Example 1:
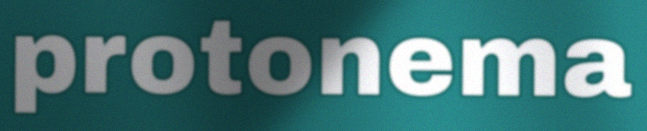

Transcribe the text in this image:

protonema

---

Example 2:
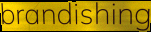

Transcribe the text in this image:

brandishing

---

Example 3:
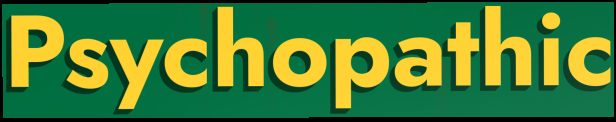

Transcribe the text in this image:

Psychopathic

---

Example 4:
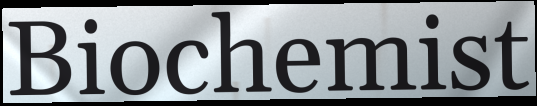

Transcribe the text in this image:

Biochemist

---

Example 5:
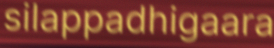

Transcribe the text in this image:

silappadhigaara